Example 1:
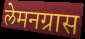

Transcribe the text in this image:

लेमनग्रास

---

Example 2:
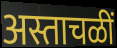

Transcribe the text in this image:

अस्ताचळीं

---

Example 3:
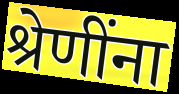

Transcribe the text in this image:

श्रेणींना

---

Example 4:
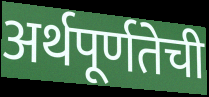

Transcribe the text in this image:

अर्थपूर्णतेची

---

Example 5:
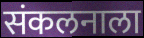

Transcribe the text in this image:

संकलनाला